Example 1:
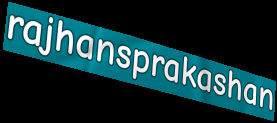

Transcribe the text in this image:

rajhansprakashan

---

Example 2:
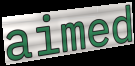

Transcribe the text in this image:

aimed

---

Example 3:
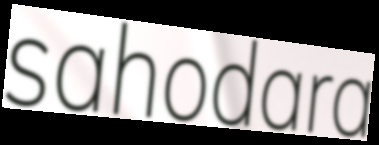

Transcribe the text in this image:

sahodara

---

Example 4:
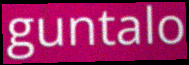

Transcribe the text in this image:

guntalo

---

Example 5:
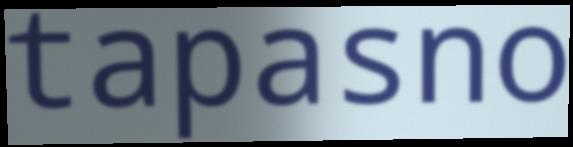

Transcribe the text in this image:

tapasno